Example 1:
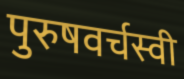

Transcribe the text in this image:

पुरुषवर्चस्वी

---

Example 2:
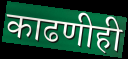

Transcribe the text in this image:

काढणीही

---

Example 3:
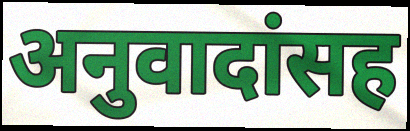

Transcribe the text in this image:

अनुवादांसह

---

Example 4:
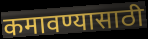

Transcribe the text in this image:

कमावण्यासाठी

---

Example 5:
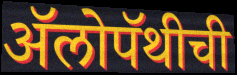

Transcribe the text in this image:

ॲलोपॅथीची